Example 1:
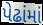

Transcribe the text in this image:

પેઢાંમાં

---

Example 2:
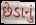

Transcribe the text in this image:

છેડાનું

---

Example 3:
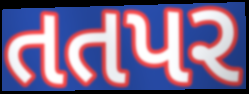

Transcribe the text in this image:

તતપર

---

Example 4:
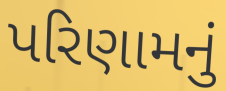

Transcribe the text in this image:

પરિણામનું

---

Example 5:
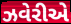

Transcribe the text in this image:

ઝવેરીએ